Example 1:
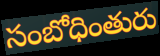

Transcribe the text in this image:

సంబోధింతురు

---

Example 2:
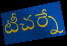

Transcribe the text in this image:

టీచర్నే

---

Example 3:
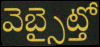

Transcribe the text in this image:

వెబ్సైట్తో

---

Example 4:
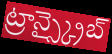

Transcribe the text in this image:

ట్రాన్స్క్రైబ్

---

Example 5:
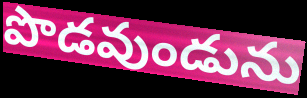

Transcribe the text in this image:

పొడవుండును